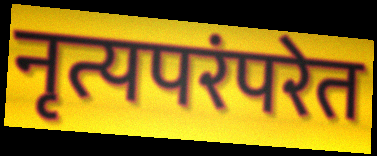
नृत्यपरंपरेत